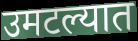
उमटल्यात